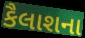
કૈલાશના